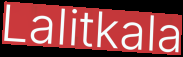
Lalitkala